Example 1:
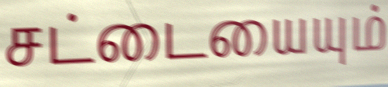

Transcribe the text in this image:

சட்டையையும்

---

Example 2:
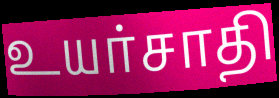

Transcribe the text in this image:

உயர்சாதி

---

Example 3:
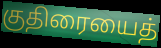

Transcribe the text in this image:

குதிரையைத்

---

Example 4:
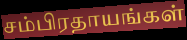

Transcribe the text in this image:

சம்பிரதாயங்கள்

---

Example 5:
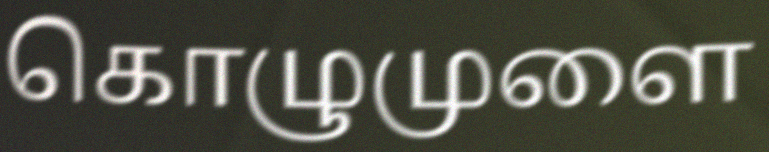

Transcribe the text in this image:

கொழுமுளை